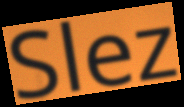
Slez